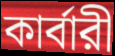
কার্বারী